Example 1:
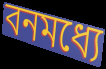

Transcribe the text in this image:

বনমধ্যে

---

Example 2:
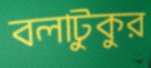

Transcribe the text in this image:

বলাটুকুর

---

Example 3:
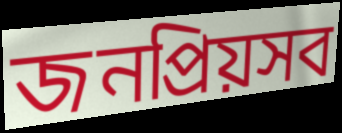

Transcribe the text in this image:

জনপ্রিয়সব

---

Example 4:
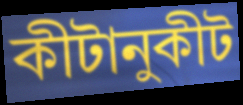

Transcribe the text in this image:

কীটানুকীট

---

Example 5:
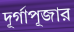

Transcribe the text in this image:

দূর্গাপূজার